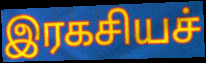
இரகசியச்